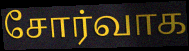
சோர்வாக